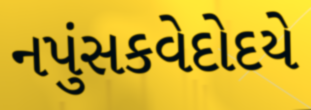
નપુંસકવેદોદયે